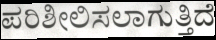
ಪರಿಶೀಲಿಸಲಾಗುತ್ತಿದೆ